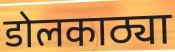
डोलकाठ्या